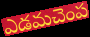
ఎడమచెంప